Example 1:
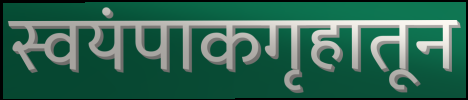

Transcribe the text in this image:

स्वयंपाकगृहातून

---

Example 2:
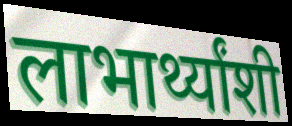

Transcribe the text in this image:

लाभार्थ्यांशी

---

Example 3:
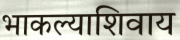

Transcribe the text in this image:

भाकल्याशिवाय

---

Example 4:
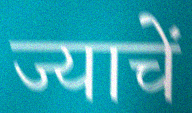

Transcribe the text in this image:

ज्याचें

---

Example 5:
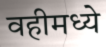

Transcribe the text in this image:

वहीमध्ये